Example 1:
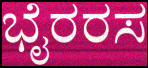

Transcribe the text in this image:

ಭೈರರಸ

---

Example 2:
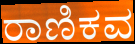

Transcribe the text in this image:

ರಾಣಿಕವ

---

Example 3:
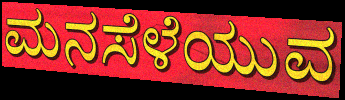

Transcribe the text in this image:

ಮನಸೆಳೆಯುವ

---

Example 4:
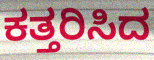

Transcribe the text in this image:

ಕತ್ತರಿಸಿದ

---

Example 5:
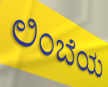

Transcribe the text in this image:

ಲಿಂಬೆಯ